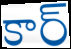
కార్